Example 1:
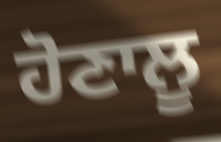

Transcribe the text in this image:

ਹੋਣਾਲੂ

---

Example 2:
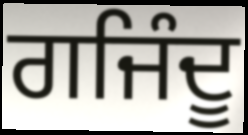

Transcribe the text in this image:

ਗਜਿੰਦੂ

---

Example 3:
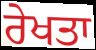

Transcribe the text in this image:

ਰੇਖਤਾ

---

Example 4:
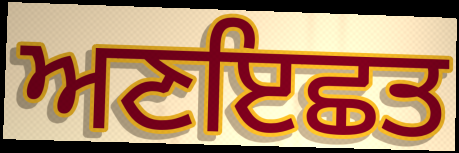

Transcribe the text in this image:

ਅਣਇਛਤ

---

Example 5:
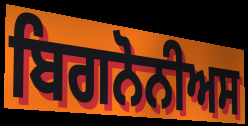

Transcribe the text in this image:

ਬਿਗਨੋਨੀਅਸ